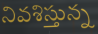
నివశిస్తున్న